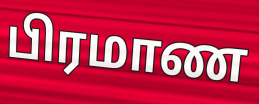
பிரமாண